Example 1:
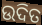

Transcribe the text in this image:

ଉଦିତ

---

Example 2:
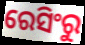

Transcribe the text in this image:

ରେସିଂରୁ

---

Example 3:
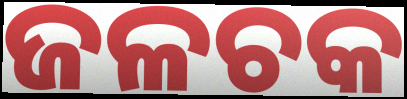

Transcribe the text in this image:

ଜଳଚକ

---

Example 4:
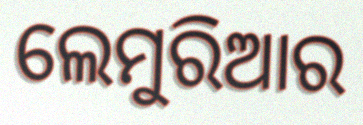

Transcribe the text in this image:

ଲେମୁରିଆର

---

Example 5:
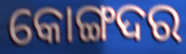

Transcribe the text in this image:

କୋଙ୍ଗଦର